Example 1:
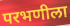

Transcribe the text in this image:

परभणीला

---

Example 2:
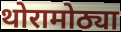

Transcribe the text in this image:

थोरामोठ्या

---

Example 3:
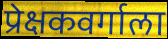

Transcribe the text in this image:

प्रेक्षकवर्गाला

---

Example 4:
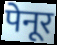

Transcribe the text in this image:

पेनूर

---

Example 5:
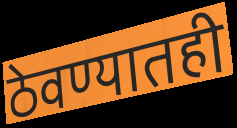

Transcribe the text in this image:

ठेवण्यातही